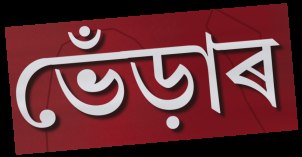
ভেঁড়াৰ